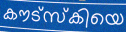
കൗട്സ്കിയെ